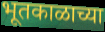
भूतकाळाच्या